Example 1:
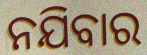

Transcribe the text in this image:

ନଯିବାର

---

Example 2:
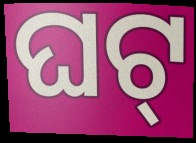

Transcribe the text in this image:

ଘଟ୍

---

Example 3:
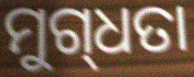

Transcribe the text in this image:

ମୁଗ୍‌ଧତା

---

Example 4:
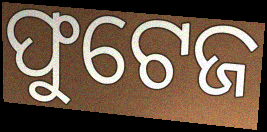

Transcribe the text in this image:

ଫୁଟେଜ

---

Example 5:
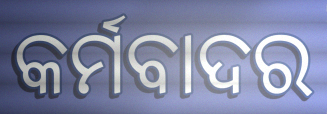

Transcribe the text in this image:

କର୍ମବାଦର